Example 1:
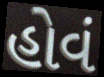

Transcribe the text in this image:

હોવં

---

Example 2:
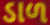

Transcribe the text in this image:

ડાળ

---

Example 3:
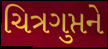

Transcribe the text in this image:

ચિત્રગુપ્તને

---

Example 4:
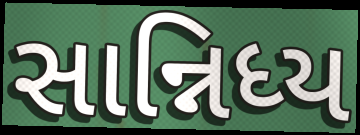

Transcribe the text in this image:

સાન્નિધ્ય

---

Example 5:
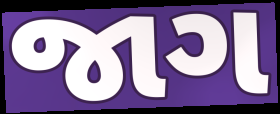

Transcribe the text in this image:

જાગ